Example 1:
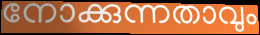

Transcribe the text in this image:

നോക്കുന്നതാവും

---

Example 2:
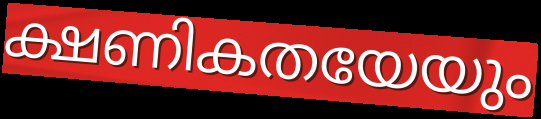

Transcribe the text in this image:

ക്ഷണികതയേയും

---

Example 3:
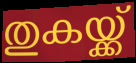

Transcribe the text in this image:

തുകയ്ക്ക്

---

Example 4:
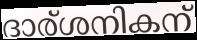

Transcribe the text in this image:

ദാര്ശനികന്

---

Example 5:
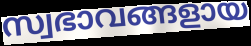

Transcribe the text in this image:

സ്വഭാവങ്ങളായ